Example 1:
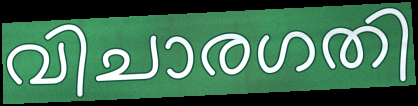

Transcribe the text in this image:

വിചാരഗതി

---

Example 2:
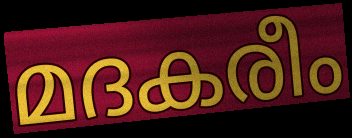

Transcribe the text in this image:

മദകരീം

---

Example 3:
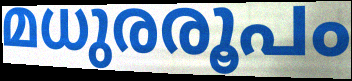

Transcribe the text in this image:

മധുരരൂപം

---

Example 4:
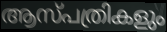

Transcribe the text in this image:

ആസ്പത്രികളും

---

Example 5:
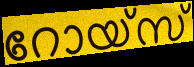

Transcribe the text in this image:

റോയ്സ്